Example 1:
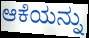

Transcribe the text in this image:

ಆಕೆಯನ್ನು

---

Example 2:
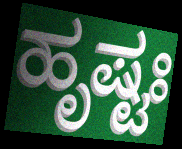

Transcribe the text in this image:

ಹೃಷ್ಟಃ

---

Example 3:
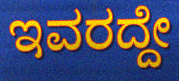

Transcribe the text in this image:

ಇವರದ್ದೇ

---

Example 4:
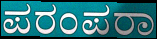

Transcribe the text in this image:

ಪರಂಪರಾ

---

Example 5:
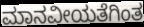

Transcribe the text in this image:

ಮಾನವೀಯತೆಗಿಂತ